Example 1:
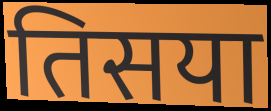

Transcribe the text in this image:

तिसया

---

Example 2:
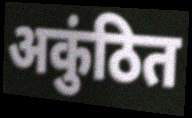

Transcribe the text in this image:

अकुंठित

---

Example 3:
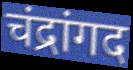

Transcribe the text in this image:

चंद्रांगद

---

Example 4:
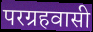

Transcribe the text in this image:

परग्रहवासी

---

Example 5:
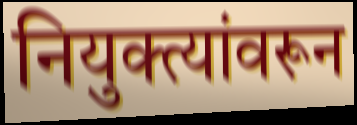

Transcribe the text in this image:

नियुक्त्यांवरून